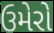
ઉમેરો